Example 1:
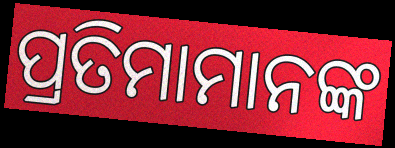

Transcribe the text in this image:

ପ୍ରତିମାମାନଙ୍କ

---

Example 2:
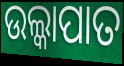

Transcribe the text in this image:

ଉଲ୍କାପାତ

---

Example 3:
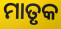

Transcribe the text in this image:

ମାତୃକ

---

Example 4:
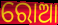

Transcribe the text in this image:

ରୋଆ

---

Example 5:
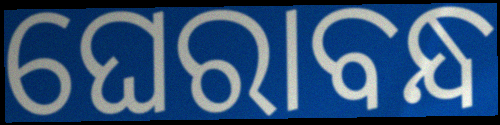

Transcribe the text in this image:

ଘେରାବନ୍ଧ